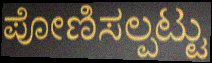
ಪೋಣಿಸಲ್ಪಟ್ಟು